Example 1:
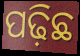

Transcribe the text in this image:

ପଢ଼ିଛ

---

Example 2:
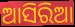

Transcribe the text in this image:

ଆସିରିଆ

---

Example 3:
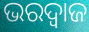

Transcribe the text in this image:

ଭରଦ୍ଵାଜ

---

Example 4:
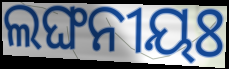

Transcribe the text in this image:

ଲଙ୍ଘନୀୟଃ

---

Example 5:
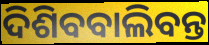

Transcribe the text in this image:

ଦିଶିବବାଲିବନ୍ତ